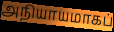
அநியாயமாகப்